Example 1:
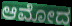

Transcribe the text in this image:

ಆಮೋದ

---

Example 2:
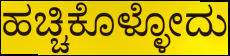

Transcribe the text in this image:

ಹಚ್ಚಿಕೊಳ್ಳೋದು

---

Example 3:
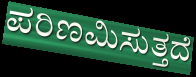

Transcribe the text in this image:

ಪರಿಣಮಿಸುತ್ತದೆ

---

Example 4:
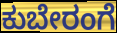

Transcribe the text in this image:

ಕುಬೇರಂಗೆ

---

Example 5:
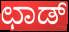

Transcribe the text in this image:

ಛಾಡ್